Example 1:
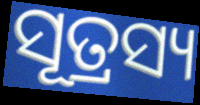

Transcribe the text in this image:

ସୂତ୍ରସ୍ୟ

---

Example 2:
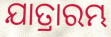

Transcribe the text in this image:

ଯାତ୍ରାରମ୍ଭ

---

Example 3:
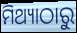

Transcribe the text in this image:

ମିଥ୍ୟାଠାରୁ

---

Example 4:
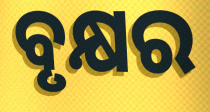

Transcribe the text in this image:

ବୃକ୍ଷର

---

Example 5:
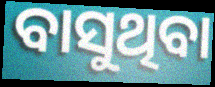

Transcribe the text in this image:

ବାସୁଥିବା